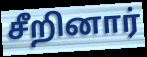
சீறினார்